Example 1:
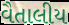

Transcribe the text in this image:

વૈતાલીય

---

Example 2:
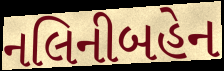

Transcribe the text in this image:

નલિનીબહેન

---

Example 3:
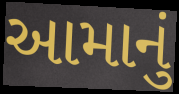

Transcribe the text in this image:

આમાનું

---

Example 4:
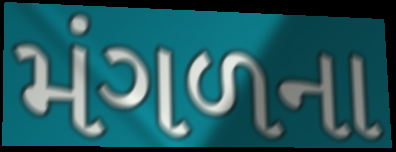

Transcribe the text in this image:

મંગળના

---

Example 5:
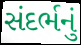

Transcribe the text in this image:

સંદર્ભનું